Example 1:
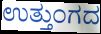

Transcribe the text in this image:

ಉತ್ತುಂಗದ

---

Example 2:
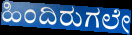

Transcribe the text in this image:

ಹಿಂದಿರುಗಲೇ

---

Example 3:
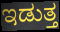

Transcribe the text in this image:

ಇಡುತ್ತ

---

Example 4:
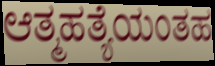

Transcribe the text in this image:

ಆತ್ಮಹತ್ಯೆಯಂತಹ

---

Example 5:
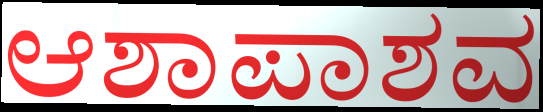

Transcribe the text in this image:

ಆಶಾಪಾಶವ